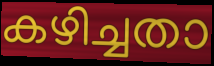
കഴിച്ചതാ